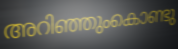
അറിഞ്ഞുംകൊണ്ടു